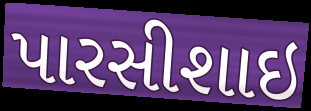
પારસીશાઇ